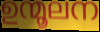
ഉന്മൂലന